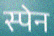
स्पेन